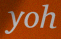
yoh